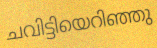
ചവിട്ടിയെറിഞ്ഞു